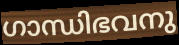
ഗാന്ധിഭവനു